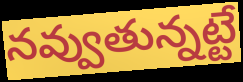
నవ్వుతున్నట్టే